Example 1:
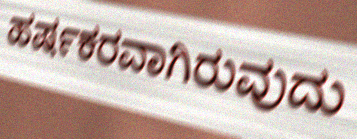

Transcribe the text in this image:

ಹರ್ಷಕರವಾಗಿರುವುದು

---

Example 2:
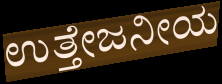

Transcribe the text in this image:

ಉತ್ತೇಜನೀಯ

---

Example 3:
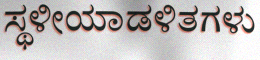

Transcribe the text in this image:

ಸ್ಥಳೀಯಾಡಳಿತಗಳು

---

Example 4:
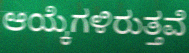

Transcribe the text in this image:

ಆಯ್ಕೆಗಳಿರುತ್ತವೆ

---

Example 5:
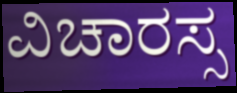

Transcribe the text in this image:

ವಿಚಾರಸ್ಸ